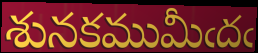
శునకముమీఁదఁ